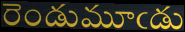
రెండుమూఁడు